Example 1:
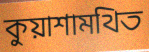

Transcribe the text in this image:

কুয়াশামথিত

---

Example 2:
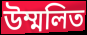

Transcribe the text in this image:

উম্মলিত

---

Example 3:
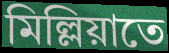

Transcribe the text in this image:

মিল্লিয়াতে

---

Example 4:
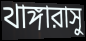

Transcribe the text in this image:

থাঙ্গারাসু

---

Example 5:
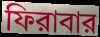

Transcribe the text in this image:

ফিরাবার